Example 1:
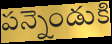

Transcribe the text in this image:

పన్నెండుకి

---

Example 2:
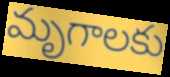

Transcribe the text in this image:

మృగాలకు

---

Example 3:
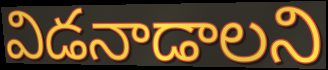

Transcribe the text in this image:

విడనాడాలని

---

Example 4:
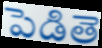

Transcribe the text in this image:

పెడితె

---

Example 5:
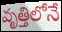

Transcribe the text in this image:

వృత్తిలోనే